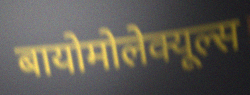
बायोमोलेक्यूल्स